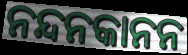
ନନ୍ଦନକାନନ